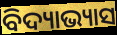
ବିଦ୍ୟାଭ୍ୟାସ